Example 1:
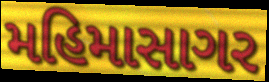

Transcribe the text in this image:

મહિમાસાગર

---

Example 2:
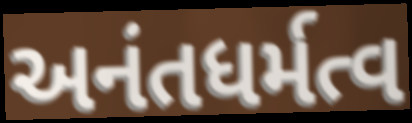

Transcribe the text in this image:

અનંતધર્મત્વ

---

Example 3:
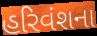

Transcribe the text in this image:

હરિવંશના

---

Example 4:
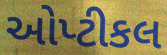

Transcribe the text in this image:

ઓપ્ટીકલ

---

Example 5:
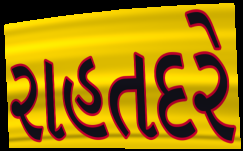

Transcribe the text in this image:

રાહતદરે